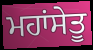
ਮਹਾਂਸੇਤੂ